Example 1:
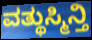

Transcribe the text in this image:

ವತ್ಥುಸ್ಮಿನ್ತಿ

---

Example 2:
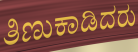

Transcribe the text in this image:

ತಿಣುಕಾಡಿದರು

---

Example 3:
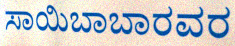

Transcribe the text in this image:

ಸಾಯಿಬಾಬಾರವರ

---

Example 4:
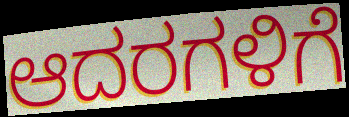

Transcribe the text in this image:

ಆದರಗಳಿಗೆ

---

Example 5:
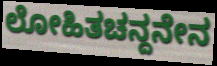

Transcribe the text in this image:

ಲೋಹಿತಚನ್ದನೇನ